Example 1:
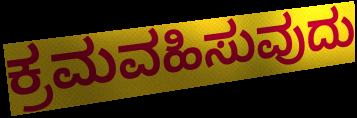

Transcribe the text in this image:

ಕ್ರಮವಹಿಸುವುದು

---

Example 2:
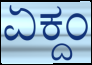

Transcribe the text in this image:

ಏಕ್ದಂ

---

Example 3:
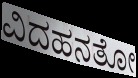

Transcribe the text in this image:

ವಿದಹನತೋ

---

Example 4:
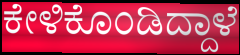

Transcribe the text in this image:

ಕೇಳಿಕೊಂಡಿದ್ದಾಳೆ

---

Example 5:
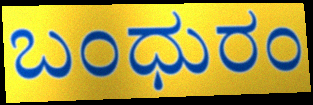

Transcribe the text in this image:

ಬಂಧುರಂ